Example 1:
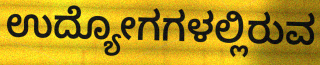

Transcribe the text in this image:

ಉದ್ಯೋಗಗಳಲ್ಲಿರುವ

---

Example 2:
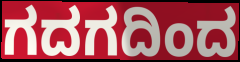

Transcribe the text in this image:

ಗದಗದಿಂದ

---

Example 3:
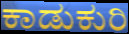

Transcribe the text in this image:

ಕಾಡುಕುರಿ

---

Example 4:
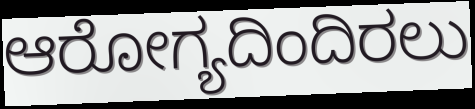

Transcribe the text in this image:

ಆರೋಗ್ಯದಿಂದಿರಲು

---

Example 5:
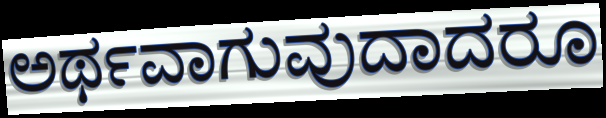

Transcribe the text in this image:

ಅರ್ಥವಾಗುವುದಾದರೂ